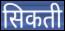
सिकती